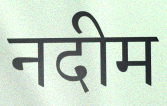
नदीम